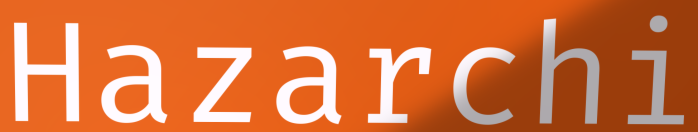
Hazarchi